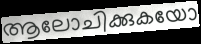
ആലോചിക്കുകയോ